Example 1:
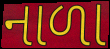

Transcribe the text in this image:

નાળા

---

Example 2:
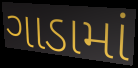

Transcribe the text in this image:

ગાડામાં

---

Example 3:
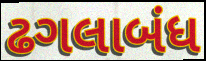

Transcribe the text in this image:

ઢગલાબંધ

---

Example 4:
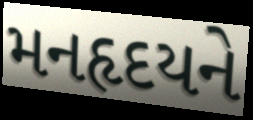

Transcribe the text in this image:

મનહૃદયને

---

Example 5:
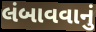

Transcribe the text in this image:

લંબાવવાનું